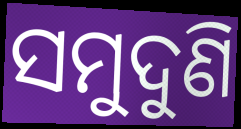
ସମୁଦୁଣି